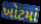
ખોટમાં